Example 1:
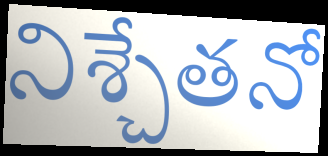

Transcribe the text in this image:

నిశ్చేతనో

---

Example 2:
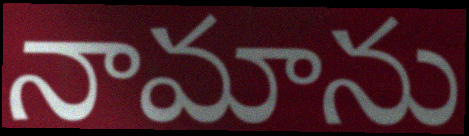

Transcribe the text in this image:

నామాను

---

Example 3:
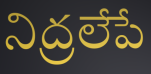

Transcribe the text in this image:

నిద్రలేపే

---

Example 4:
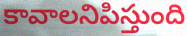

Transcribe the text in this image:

కావాలనిపిస్తుంది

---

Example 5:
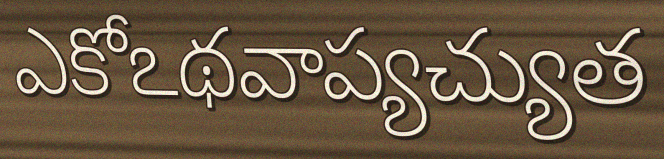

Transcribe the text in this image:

ఎకోఽథవాప్యచ్యుత